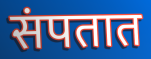
संपतात